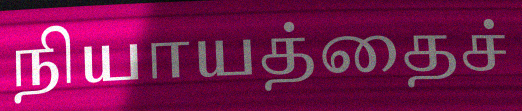
நியாயத்தைச்